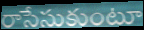
రాసేసుకుంటూ